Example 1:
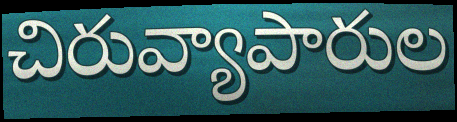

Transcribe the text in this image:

చిరువ్యాపారుల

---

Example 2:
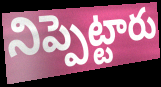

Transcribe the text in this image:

నిప్పెట్టారు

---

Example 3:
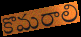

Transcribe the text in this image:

కొమరాలి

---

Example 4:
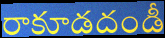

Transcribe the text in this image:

రాకూడదండీ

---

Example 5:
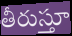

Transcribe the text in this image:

తీరుస్తూ